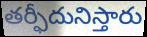
తర్ఫీదునిస్తారు